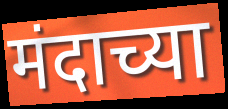
मंदाच्या